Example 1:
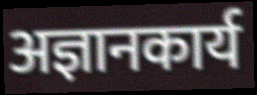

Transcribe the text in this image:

अज्ञानकार्य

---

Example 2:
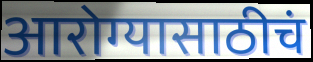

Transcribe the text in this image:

आरोग्यासाठीचं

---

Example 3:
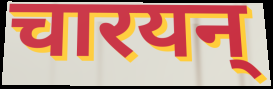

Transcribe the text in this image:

चारयन्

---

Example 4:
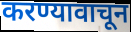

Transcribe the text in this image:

करण्यावाचून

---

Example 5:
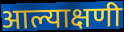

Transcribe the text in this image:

आल्याक्षणी